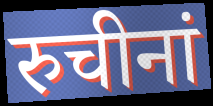
रुचीनां